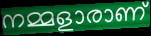
നമ്മളാരാണ്